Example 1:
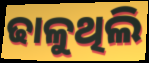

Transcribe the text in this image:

ଢାଳୁଥିଲି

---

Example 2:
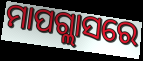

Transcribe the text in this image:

ମାପଗ୍ଲାସରେ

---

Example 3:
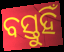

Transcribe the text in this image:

ବସ୍ତୁହିଁ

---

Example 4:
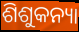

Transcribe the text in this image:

ଶିଶୁକନ୍ୟା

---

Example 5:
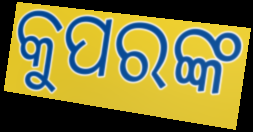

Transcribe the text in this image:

କୁପରଙ୍କ